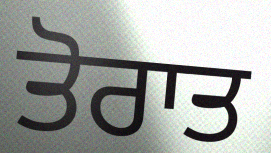
ਤੋਰਾਤ